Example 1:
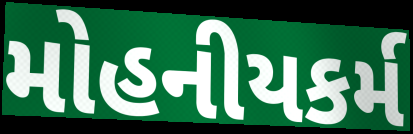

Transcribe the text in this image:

મોહનીયકર્મ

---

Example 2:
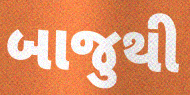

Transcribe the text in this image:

બાજુથી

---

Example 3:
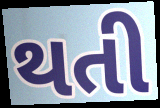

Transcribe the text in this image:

થતી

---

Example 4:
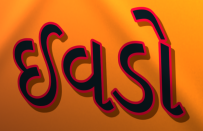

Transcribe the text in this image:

ઈવડો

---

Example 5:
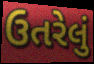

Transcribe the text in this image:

ઉતરેલું